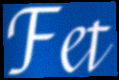
Fet